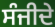
ਸੰਜੀਦੇ